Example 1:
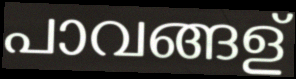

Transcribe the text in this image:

പാവങ്ങള്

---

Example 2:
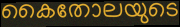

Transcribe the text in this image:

കൈതോലയുടെ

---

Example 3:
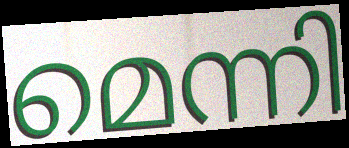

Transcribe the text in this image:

മെന്നി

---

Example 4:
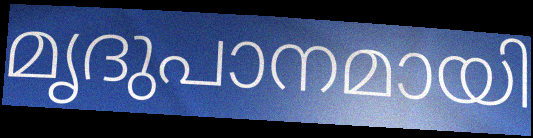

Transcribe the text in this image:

മൃദുപാനമായി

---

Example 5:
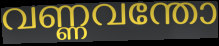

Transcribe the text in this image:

വണ്ണവന്തോ